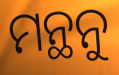
ମନ୍ଥନୁ